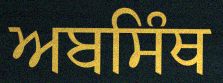
ਅਬਸਿੰਥ